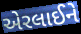
એરલાઈને